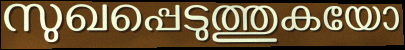
സുഖപ്പെടുത്തുകയോ